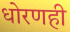
धोरणही